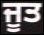
ਜੂਤ